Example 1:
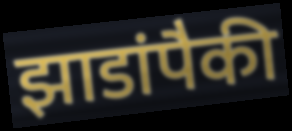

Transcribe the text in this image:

झाडांपैकी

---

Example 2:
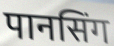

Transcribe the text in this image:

पानसिंग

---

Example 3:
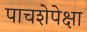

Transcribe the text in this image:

पाचशेपेक्षा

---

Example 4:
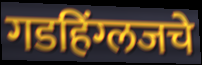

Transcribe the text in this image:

गडहिंग्लजचे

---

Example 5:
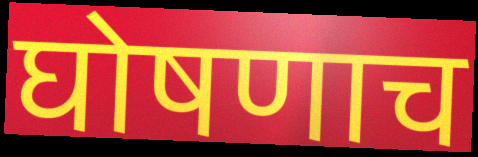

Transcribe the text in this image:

घोषणाच